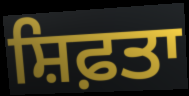
ਸ਼ਿਫ਼ਤਾ